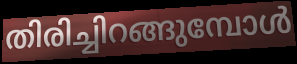
തിരിച്ചിറങ്ങുമ്പോൾ